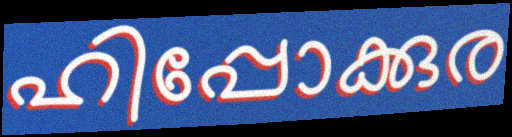
ഹിപ്പോക്കുര